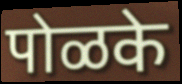
पोळके